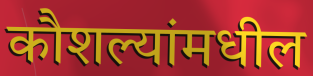
कौशल्यांमधील